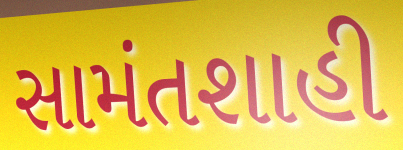
સામંતશાહી